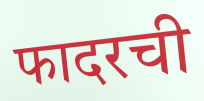
फादरची